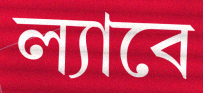
ল্যাবে